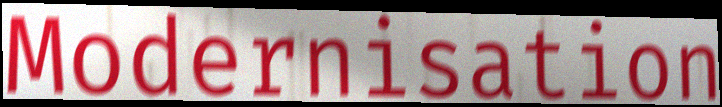
Modernisation